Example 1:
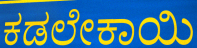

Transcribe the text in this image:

ಕಡಲೇಕಾಯಿ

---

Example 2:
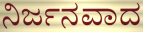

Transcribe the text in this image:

ನಿರ್ಜನವಾದ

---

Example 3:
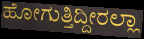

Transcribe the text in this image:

ಹೋಗುತ್ತಿದ್ದೀರಲ್ಲಾ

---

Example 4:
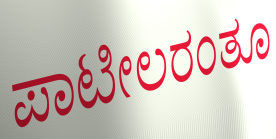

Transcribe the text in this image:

ಪಾಟೀಲರಂತೂ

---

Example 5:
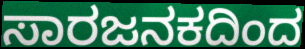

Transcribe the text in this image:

ಸಾರಜನಕದಿಂದ